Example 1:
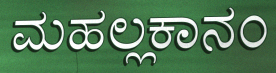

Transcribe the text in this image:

ಮಹಲ್ಲಕಾನಂ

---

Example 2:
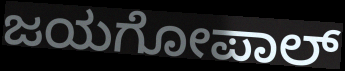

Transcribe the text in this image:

ಜಯಗೋಪಾಲ್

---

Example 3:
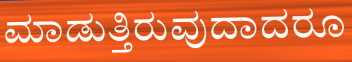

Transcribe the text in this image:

ಮಾಡುತ್ತಿರುವುದಾದರೂ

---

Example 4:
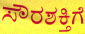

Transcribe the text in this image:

ಸೌರಶಕ್ತಿಗೆ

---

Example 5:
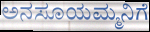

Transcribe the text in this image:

ಅನಸೂಯಮ್ಮನಿಗೆ